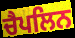
ਚੈਪਲਿਨ